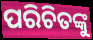
ପରିଚିତଙ୍କୁ